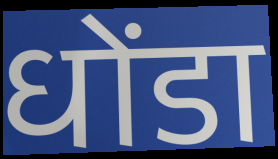
धोंडा